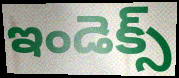
ఇండెక్స్